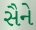
સૈને